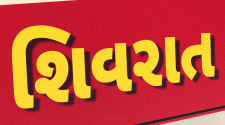
શિવરાત